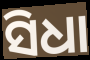
ସିଧା